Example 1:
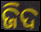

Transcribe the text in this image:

ଜିଦ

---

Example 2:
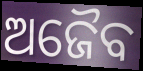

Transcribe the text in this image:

ଅଜୈବ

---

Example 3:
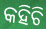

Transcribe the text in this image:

କହିଚି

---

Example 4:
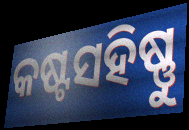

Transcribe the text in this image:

କଷ୍ଟସହିଷ୍ଣୁ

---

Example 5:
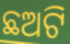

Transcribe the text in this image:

ଛଅଟି